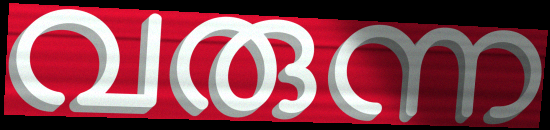
വരുന്ന